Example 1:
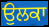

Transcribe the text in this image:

ਉਲਕਾ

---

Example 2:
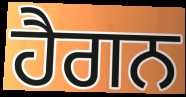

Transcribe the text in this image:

ਹੈਗਨ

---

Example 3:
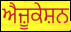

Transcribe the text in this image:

ਐਜ਼ੂਕੇਸ਼ਨ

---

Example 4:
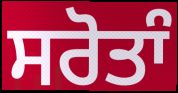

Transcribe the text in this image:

ਸਰੋਤਾੰ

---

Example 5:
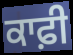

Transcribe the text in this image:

ਕਾਫ਼ੀ